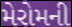
મેરોમની